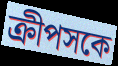
ক্রীপসকে